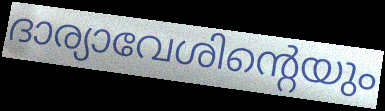
ദാര്യാവേശിന്റെയും